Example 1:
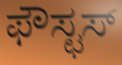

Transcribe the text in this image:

ಫೌಸ್ಟಸ್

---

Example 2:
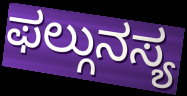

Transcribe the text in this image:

ಫಲ್ಗುನಸ್ಯ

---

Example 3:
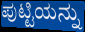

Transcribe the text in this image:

ಪುಟ್ಟಿಯನ್ನು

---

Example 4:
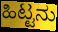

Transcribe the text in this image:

ಹಿಟ್ಟನು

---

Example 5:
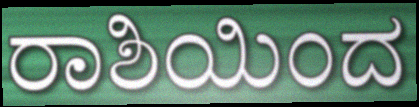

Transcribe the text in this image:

ರಾಶಿಯಿಂದ